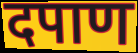
दपाण